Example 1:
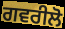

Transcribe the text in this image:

ਗਵਰੀਲੋ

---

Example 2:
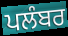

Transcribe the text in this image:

ਪਲੰਬਰ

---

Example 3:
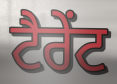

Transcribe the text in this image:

ਟੈਰੇਂਟ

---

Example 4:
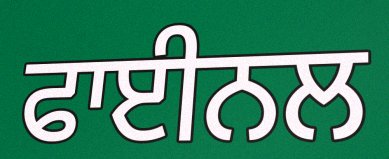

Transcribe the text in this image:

ਫਾਈਨਲ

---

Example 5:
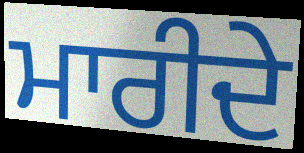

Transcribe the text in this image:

ਮਾਰੀਦੇ